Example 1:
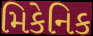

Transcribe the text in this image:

મિકેનિક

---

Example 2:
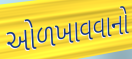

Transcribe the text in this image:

ઓળખાવવાનો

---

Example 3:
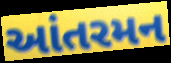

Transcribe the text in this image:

આંતરમન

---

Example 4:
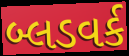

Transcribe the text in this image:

બ્લડવર્ક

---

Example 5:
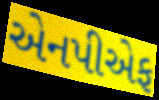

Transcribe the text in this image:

એનપીએફ